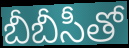
బీబీసీతో